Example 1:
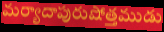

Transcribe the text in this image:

మర్యాదాపురుషోత్తముడు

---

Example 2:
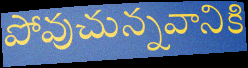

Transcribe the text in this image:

పోవుచున్నవానికి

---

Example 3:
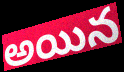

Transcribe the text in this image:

అయిన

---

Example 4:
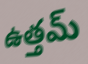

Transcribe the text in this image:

ఉత్తమ్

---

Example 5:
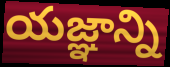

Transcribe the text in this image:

యజ్ఞాన్ని